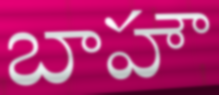
బాహౌ